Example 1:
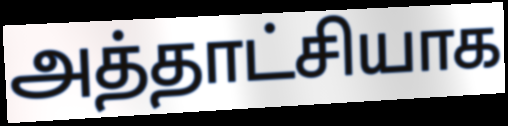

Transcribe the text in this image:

அத்தாட்சியாக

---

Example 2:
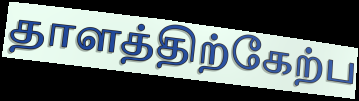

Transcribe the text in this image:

தாளத்திற்கேற்ப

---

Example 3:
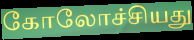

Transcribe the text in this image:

கோலோச்சியது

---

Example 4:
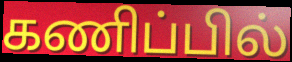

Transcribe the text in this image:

கணிப்பில்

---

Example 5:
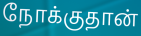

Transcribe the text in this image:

நோக்குதான்